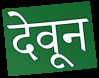
देवून